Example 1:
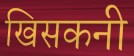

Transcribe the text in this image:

खिसकनी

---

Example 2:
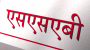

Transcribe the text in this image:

एसएसएबी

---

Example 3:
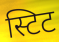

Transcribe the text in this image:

स्टिट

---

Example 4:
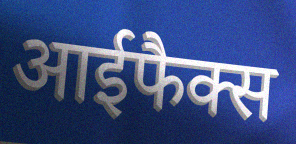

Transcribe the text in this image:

आईफैक्स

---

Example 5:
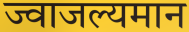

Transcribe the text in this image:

ज्वाजल्यमान